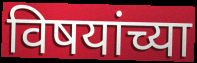
विषयांच्या